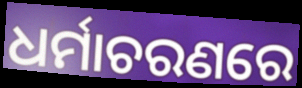
ଧର୍ମାଚରଣରେ